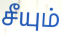
சீயும்